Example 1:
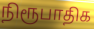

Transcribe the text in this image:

நிரூபாதிக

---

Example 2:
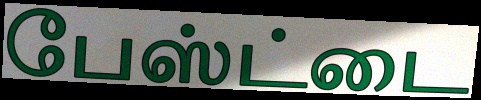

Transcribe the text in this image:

பேஸ்ட்டை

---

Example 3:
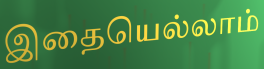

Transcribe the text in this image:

இதையெல்லாம்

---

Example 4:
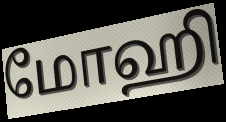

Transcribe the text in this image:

மோஹி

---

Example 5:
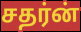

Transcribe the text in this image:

சதர்ன்